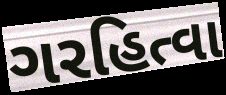
ગરહિત્વા